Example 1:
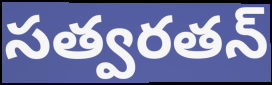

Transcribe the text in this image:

సత్వరతన్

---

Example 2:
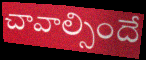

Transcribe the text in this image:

చావాల్సిందే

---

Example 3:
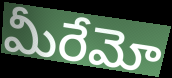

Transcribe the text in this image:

మీరేమో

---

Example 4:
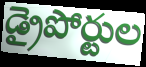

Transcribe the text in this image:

డ్రైపోర్టుల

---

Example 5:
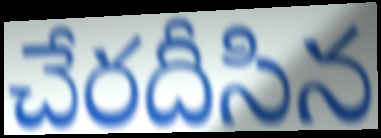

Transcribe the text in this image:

చేరదీసిన